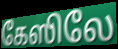
கேஸிலே